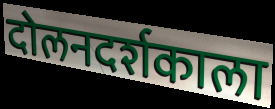
दोलनदर्शकाला